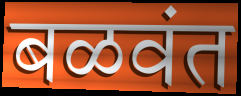
बळवंत